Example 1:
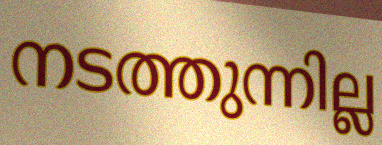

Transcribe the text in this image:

നടത്തുന്നില്ല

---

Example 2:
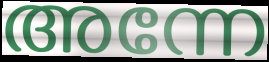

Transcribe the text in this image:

അന്നേ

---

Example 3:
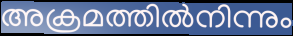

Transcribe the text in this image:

അക്രമത്തിൽനിന്നും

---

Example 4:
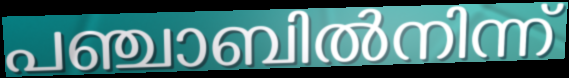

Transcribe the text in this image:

പഞ്ചാബിൽനിന്ന്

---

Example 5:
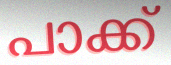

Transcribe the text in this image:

പാക്ക്